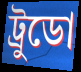
ট্রুডো